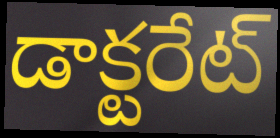
డాక్టరేట్